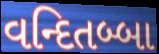
વન્દિતબ્બા